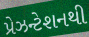
પ્રેઝન્ટેશનથી